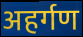
अहर्गण